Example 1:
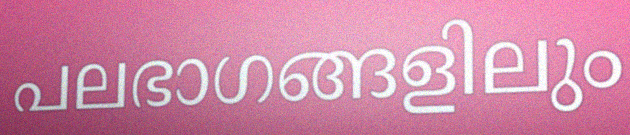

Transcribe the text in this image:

പലഭാഗങ്ങളിലും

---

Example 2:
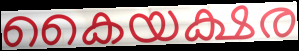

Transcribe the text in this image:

കൈയക്ഷര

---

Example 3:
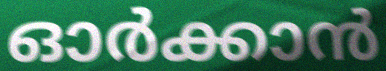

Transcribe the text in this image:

ഓർക്കാൻ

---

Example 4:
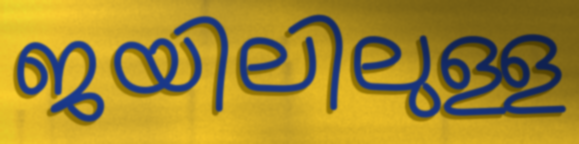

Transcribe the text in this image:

ജയിലിലുള്ള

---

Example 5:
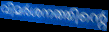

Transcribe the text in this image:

വിമർശനത്തിന്റെ